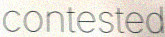
contested